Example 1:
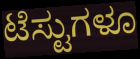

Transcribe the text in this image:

ಟೆಸ್ಟುಗಳೂ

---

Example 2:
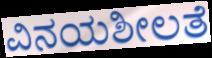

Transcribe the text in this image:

ವಿನಯಶೀಲತೆ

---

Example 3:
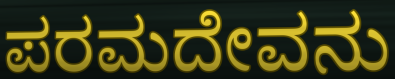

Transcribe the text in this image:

ಪರಮದೇವನು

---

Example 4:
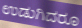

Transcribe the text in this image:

ಉಡುಗಿದರೂ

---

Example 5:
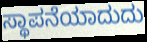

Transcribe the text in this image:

ಸ್ಥಾಪನೆಯಾದುದು